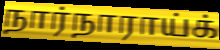
நார்நாராய்க்